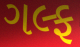
ગલ્ફ